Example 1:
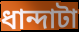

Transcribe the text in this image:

ধান্দাটা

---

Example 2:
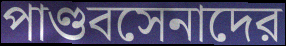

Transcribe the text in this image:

পাণ্ডবসেনাদের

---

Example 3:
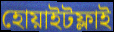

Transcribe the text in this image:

হোয়াইটফ্লাই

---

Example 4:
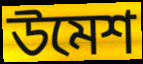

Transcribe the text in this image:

উমেশ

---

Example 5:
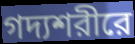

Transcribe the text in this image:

গদ্যশরীরে